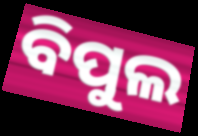
ବିପୁଲ